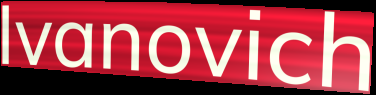
Ivanovich